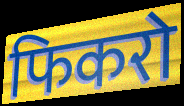
फिकरो